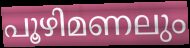
പൂഴിമണലും